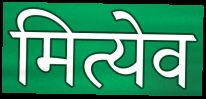
मित्येव